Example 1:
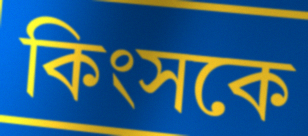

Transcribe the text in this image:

কিংসকে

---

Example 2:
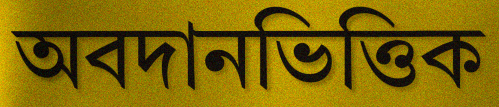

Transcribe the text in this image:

অবদানভিত্তিক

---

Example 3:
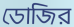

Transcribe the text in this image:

ডোজির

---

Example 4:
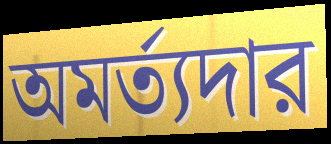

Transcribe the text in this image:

অমর্ত্যদার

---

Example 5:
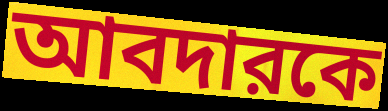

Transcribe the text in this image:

আবদারকে